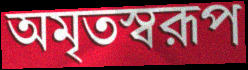
অমৃতস্বরূপ